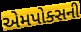
એમપોક્સની